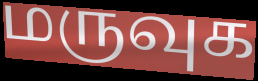
மருவுக